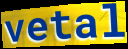
vetal